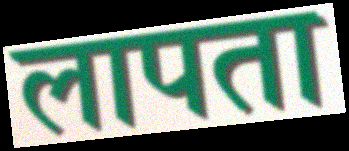
लापता